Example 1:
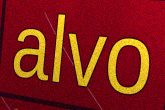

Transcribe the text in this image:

alvo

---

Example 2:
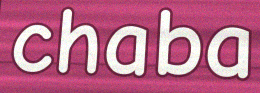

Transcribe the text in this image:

chaba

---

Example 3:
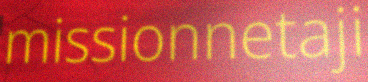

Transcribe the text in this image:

missionnetaji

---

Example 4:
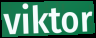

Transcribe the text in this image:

viktor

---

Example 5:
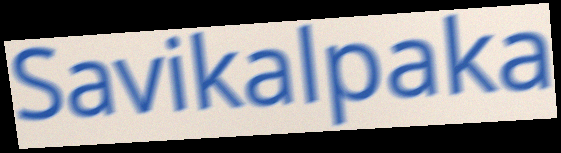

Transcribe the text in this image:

Savikalpaka